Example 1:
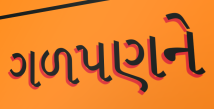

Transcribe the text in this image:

ગળપણને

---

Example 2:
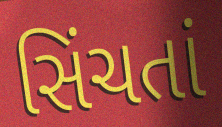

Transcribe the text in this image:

સિંચતાં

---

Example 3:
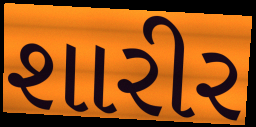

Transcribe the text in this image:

શારીર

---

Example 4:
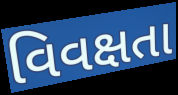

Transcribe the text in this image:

વિવક્ષતા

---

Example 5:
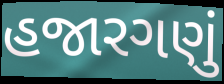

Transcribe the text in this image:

હજારગણું